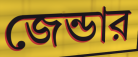
জেন্ডার